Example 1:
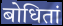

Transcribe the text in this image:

बोधितां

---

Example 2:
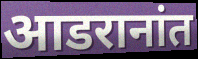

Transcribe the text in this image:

आडरानांत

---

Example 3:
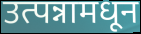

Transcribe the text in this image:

उत्पन्नामधून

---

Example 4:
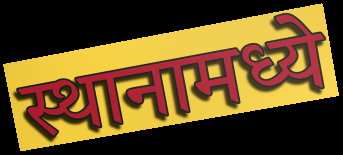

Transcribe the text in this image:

स्थानामध्ये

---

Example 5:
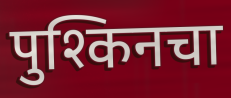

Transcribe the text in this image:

पुश्किनचा